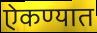
ऐकण्यात